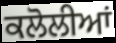
ਕਲੋਲੀਆਂ